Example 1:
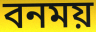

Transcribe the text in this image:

বনময়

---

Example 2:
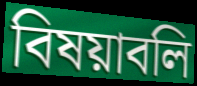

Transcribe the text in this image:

বিষয়াবলি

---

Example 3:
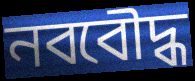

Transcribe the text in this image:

নববৌদ্ধ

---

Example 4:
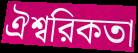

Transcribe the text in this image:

ঐশ্বরিকতা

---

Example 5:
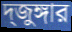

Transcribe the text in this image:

দ্জুঙ্গার